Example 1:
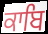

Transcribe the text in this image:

ਕਾਬਿ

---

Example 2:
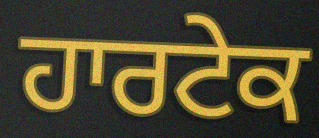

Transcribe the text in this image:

ਹਾਰਟੇਕ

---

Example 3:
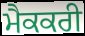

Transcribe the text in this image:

ਮੈਕਕਰੀ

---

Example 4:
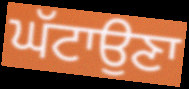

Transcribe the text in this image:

ਘੱਟਾਉਣਾ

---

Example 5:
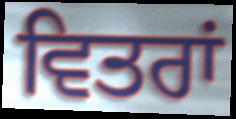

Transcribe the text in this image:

ਵਿਤਰਾਂ